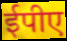
ईपीए